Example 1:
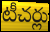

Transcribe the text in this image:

టీచర్లు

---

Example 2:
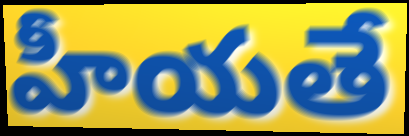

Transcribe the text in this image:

హీయతే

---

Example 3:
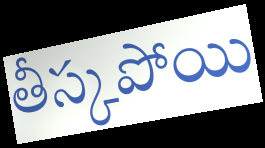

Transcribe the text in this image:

తీస్కపోయి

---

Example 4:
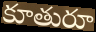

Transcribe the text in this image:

కూతురూ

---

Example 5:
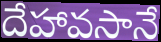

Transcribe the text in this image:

దేహావసానే